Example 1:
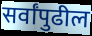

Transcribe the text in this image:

सर्वांपुढील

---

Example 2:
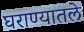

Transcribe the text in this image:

घराण्यातले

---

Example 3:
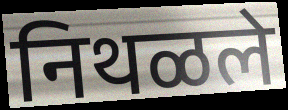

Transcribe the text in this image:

निथळले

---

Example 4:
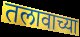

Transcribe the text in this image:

तलावाच्या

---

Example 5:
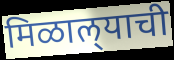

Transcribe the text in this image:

मिळाल्याची